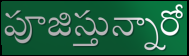
పూజిస్తున్నారో